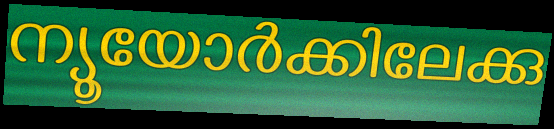
ന്യൂയോർക്കിലേക്കു